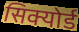
सिक्योर्ड